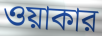
ওয়াকার